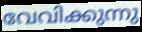
വേവിക്കുന്നു